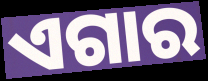
ଏଗାର